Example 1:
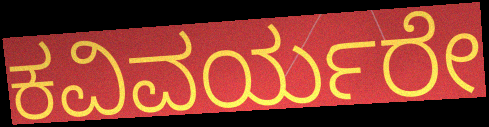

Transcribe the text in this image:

ಕವಿವರ್ಯರೇ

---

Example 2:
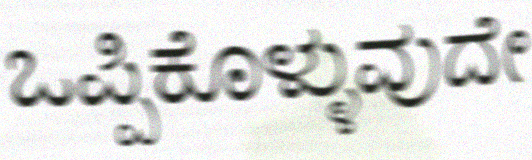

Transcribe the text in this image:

ಒಪ್ಪಿಕೊಳ್ಳುವುದೇ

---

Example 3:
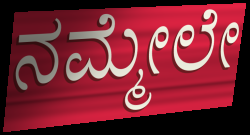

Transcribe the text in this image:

ನಮ್ಮೇಲೇ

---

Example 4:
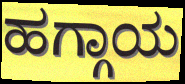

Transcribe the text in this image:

ಹಗ್ಗಾಯ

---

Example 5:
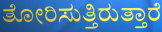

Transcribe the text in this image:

ತೋರಿಸುತ್ತಿರುತ್ತಾರೆ